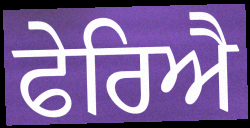
ਫੇਰਿਐ